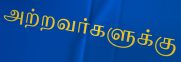
அற்றவர்களுக்கு